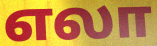
எலா